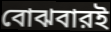
বোঝবারই